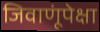
जिवाणूंपेक्षा